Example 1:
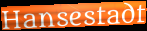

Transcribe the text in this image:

Hansestadt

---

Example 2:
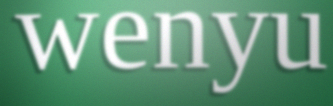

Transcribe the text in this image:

wenyu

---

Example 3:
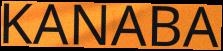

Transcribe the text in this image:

KANABA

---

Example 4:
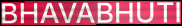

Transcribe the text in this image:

BHAVABHUTI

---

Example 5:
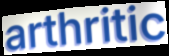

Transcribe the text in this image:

arthritic